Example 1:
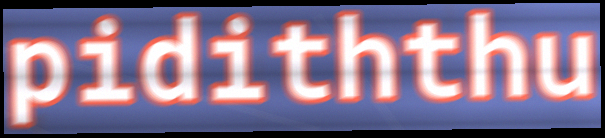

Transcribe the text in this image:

pidiththu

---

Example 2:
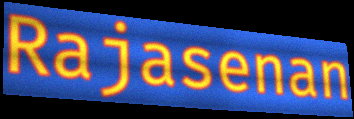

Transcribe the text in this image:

Rajasenan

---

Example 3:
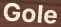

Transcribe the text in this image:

Gole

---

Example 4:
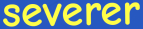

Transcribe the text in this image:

severer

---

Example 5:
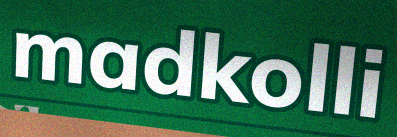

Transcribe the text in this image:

madkolli